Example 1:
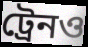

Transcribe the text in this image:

ট্রেনও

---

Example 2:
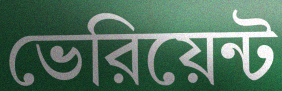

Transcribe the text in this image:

ভেরিয়েন্ট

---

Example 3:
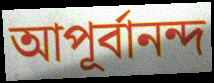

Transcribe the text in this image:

আপূর্বানন্দ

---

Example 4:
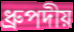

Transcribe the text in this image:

ধ্রুপদীয়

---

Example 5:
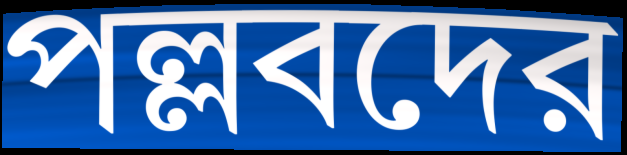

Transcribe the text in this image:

পল্লবদের